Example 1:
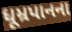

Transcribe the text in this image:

ધૂમ્રપાનના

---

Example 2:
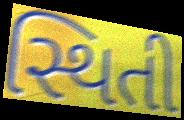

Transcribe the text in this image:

સ્થિતી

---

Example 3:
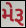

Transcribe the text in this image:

મેરૂ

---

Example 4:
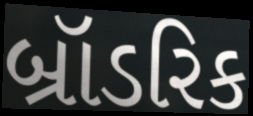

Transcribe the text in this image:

બ્રૉડરિક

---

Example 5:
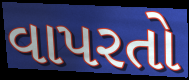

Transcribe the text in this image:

વાપરતો